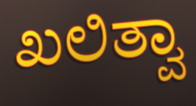
ಖಲಿತ್ವಾ